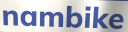
nambike